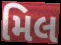
મિલ